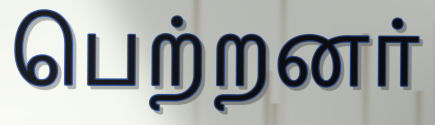
பெற்றனர்